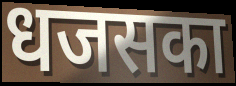
धजसका